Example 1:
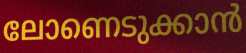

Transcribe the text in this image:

ലോണെടുക്കാൻ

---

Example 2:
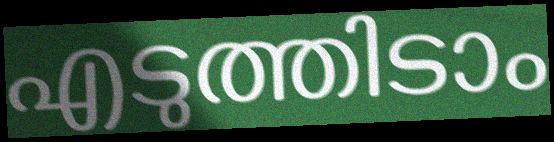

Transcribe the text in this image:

എടുത്തിടാം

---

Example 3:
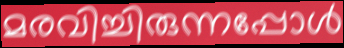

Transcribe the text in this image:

മരവിച്ചിരുന്നപ്പോൾ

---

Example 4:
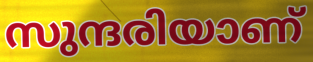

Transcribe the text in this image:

സുന്ദരിയാണ്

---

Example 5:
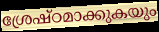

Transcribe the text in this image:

ശ്രേഷ്ഠമാക്കുകയും